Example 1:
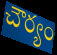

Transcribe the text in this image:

చౌర్యం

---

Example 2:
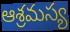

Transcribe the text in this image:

ఆశ్రమస్య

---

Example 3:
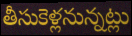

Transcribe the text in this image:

తీసుకెళ్లనున్నట్లు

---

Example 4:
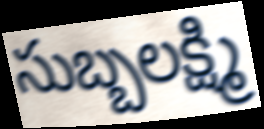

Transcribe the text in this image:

సుబ్బలక్ష్మి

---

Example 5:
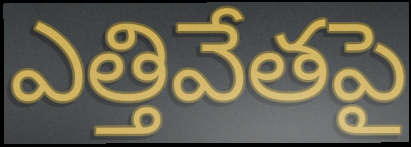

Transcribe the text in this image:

ఎత్తివేతపై